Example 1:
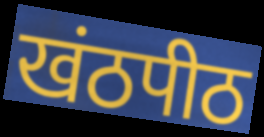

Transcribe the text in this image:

खंठपीठ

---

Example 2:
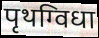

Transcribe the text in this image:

पृथग्विधा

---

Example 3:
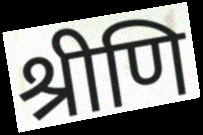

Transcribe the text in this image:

श्रीणि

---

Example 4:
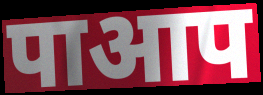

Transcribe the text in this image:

पाआप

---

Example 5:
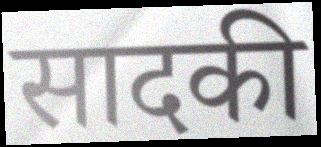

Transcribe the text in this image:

सादकी